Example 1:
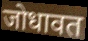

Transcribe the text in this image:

जोधावत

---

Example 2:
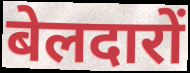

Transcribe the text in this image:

बेलदारों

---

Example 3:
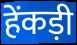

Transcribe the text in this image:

हेंकड़ी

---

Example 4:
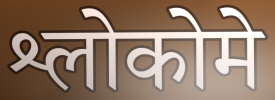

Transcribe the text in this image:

श्लोकोमे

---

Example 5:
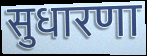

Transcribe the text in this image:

सुधारणा